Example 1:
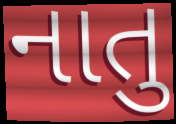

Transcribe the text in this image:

નાતુ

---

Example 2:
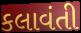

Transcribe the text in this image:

કલાવંતી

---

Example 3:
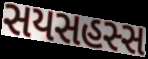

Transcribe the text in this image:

સયસહસ્સ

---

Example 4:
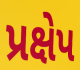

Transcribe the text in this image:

પ્રક્ષેપ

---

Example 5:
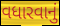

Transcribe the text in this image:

વધારવાનું